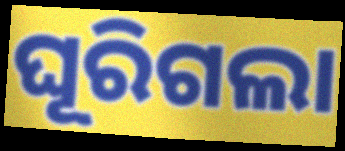
ଘୂରିଗଲା